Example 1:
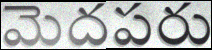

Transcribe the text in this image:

మెదపరు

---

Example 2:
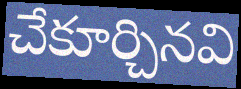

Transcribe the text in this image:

చేకూర్చినవి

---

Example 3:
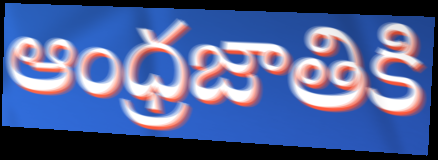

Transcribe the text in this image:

ఆంధ్రజాతికి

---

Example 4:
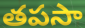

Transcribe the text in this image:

తపసా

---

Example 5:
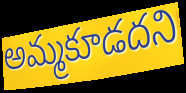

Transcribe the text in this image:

అమ్మకూడదని